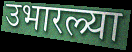
उभारल्या